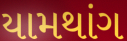
યામથાંગ